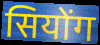
सियोंग